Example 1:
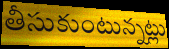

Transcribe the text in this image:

తీసుకుంటున్నట్లు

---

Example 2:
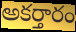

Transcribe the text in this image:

అకర్తారం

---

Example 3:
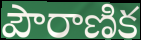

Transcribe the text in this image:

పౌరాణిక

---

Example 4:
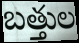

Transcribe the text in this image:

బత్తుల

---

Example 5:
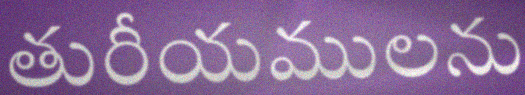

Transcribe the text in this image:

తురీయములను